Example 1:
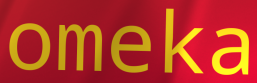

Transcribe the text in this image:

omeka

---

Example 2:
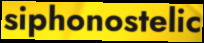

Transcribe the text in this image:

siphonostelic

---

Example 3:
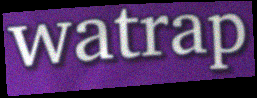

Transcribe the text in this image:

watrap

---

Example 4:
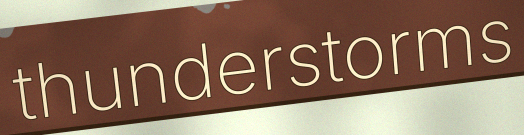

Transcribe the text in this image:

thunderstorms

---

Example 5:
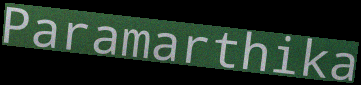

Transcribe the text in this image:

Paramarthika